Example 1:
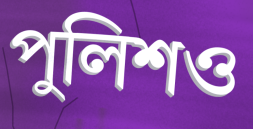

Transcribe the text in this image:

পুলিশও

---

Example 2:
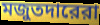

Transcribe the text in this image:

মজুতদারেরা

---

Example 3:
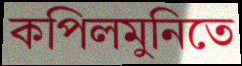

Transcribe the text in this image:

কপিলমুনিতে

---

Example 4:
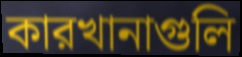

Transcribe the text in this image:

কারখানাগুলি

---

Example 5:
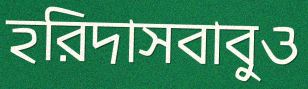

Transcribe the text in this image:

হরিদাসবাবুও